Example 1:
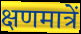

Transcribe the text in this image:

क्षणमात्रें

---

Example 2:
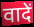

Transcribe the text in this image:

वादें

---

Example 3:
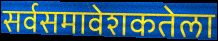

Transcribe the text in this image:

सर्वसमावेशकतेला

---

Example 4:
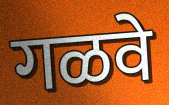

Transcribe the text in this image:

गळवे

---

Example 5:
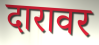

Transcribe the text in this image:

दारावर